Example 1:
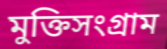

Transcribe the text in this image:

মুক্তিসংগ্রাম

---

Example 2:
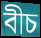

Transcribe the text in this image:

বীচ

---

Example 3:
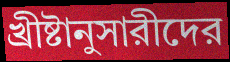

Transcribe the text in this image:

খ্রীষ্টানুসারীদের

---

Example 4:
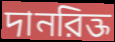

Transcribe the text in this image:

দানরিক্ত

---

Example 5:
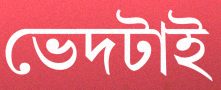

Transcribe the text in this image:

ভেদটাই